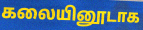
கலையினூடாக